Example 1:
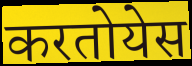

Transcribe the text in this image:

करतोयेस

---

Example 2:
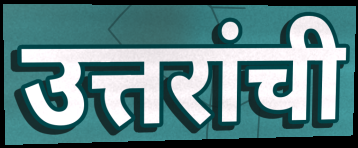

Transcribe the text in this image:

उत्तरांची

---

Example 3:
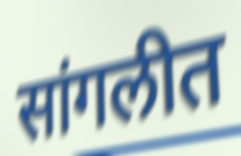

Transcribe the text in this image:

सांगलीत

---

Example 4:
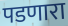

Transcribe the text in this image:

पडणारा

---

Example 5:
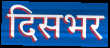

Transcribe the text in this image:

दिसभर